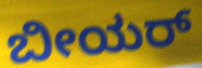
ಬೀಯರ್